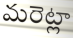
మరెట్లా